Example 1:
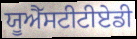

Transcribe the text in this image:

ਯੂਐੱਸਟੀਟੀਏਡੀ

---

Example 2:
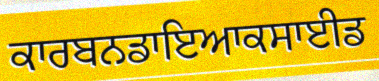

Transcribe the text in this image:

ਕਾਰਬਨਡਾਇਆਕਸਾਈਡ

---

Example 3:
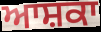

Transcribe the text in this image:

ਆਸ਼ਕਾ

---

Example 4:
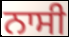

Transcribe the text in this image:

ਨਾਸੀ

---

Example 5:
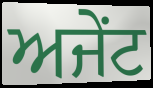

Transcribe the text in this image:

ਅਜੇਂਟ